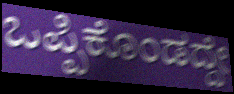
ಒಪ್ಪಿಕೊಂಡದ್ದೇ